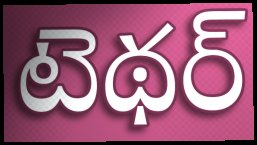
టెథర్